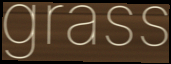
grass